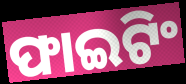
ଫାଇଟିଂ